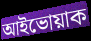
আইভোয়াক